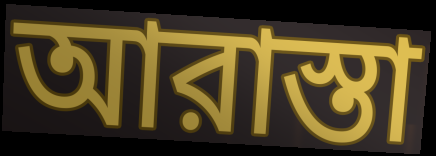
আরাস্তা